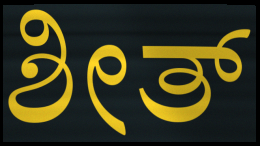
ಶೀತ್